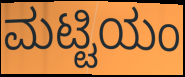
ಮಟ್ಟಿಯಂ